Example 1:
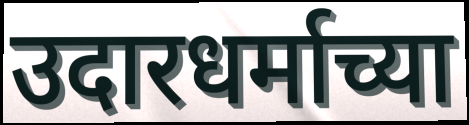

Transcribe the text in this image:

उदारधर्माच्या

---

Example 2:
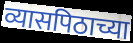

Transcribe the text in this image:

व्यासपिठाच्या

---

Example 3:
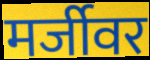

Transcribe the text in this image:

मर्जीवर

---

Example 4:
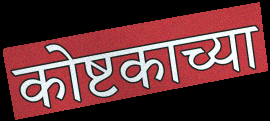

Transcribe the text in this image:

कोष्टकाच्या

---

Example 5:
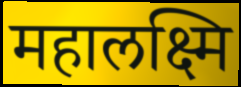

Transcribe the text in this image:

महालक्ष्मि